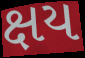
ક્ષય